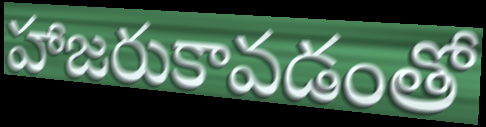
హాజరుకావడంతో